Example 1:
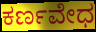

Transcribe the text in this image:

ಕರ್ಣವೇಧ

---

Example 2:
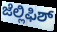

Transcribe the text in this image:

ಜೆಲ್ಲಿಫಿಶ್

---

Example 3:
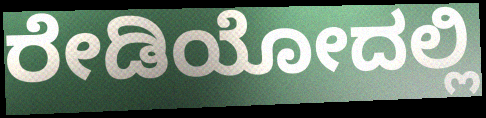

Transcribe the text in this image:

ರೇಡಿಯೋದಲ್ಲಿ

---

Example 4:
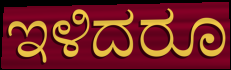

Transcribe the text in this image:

ಇಳಿದರೂ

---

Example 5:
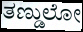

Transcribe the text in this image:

ತಣ್ಡುಲೋ